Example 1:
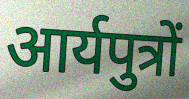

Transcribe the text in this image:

आर्यपुत्रों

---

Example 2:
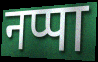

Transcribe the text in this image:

नप्पा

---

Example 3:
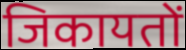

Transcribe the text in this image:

जिकायतों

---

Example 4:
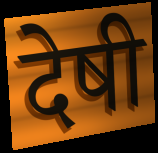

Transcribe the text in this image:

देषी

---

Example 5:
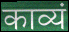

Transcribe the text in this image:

काव्यं